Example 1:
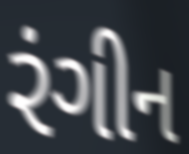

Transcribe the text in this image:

રંગીન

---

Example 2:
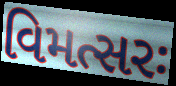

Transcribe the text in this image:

વિમત્સરઃ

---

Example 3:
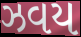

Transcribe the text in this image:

ઝવય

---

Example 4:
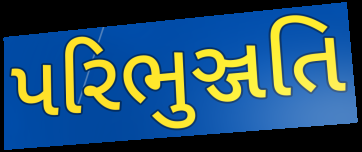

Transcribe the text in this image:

પરિભુઞ્જતિ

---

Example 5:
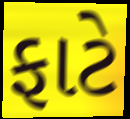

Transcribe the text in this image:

ફાટે